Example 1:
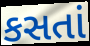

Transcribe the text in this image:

કસતાં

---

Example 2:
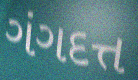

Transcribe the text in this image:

ગંગદત્ત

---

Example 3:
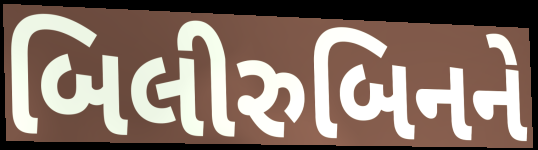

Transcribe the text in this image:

બિલીરુબિનને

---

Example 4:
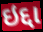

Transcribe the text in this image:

ઇદ્દા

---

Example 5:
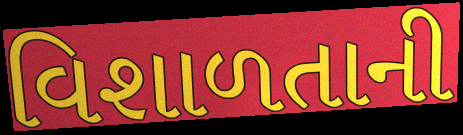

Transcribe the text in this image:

વિશાળતાની